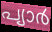
പ്യാർ